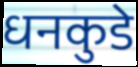
धनकुडे